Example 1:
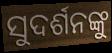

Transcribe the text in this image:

ସୁଦର୍ଶନଙ୍କୁ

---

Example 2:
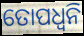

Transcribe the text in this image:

ତୋପଧ୍ୱନି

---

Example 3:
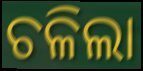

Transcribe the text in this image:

ଚଳିଲା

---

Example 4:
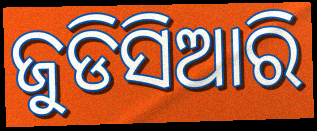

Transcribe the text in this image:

ଜୁଡିସିଆରି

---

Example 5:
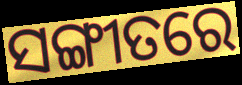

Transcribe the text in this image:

ସଙ୍ଗୀତରେ